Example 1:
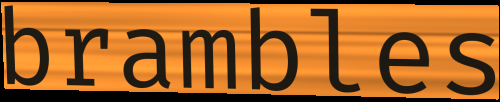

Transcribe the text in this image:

brambles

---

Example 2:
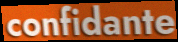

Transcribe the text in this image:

confidante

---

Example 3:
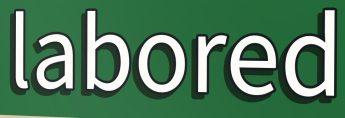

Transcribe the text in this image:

labored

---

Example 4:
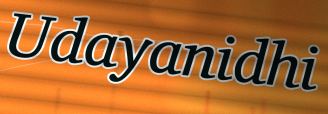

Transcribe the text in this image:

Udayanidhi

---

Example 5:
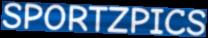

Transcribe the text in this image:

SPORTZPICS